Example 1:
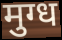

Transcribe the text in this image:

मुग्ध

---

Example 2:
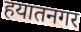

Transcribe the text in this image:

हयातनगर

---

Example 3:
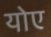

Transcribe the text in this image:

योए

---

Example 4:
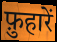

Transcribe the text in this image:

फ़ुहारें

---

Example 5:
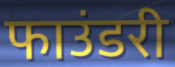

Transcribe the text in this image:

फाउंडरी